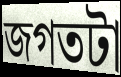
জগতটা